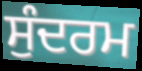
ਸੁੰਦਰਮ